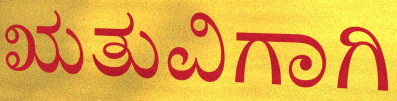
ಋತುವಿಗಾಗಿ